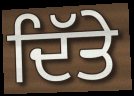
ਦਿੱਤੇ